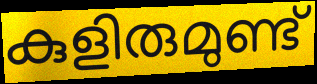
കുളിരുമുണ്ട്